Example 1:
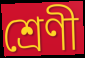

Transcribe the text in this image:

শ্রেণী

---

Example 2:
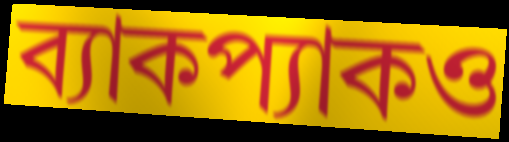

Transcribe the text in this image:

ব্যাকপ্যাকও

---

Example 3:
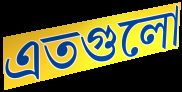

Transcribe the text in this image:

এতগুলো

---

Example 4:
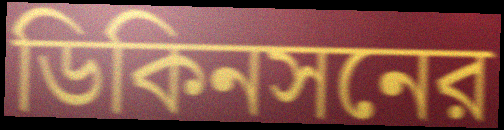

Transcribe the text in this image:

ডিকিনসনের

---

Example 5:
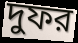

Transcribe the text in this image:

দুফর